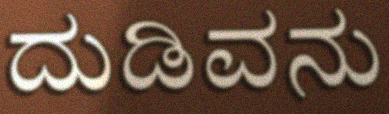
ದುಡಿವನು